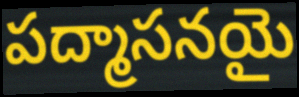
పద్మాసనయై